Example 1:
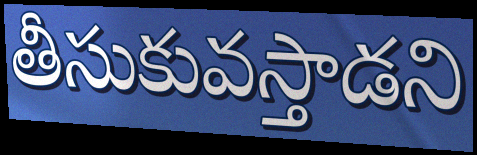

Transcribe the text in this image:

తీసుకువస్తాడని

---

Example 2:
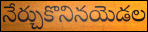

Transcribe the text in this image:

నేర్చుకొనినయెడల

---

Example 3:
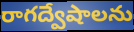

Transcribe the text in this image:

రాగద్వేషాలను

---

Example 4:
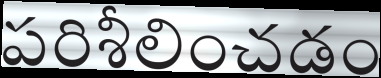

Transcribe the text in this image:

పరిశీలించడం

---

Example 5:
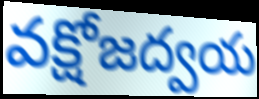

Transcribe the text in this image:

వక్షోజద్వయ